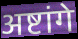
अष्टांगे